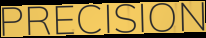
PRECISION